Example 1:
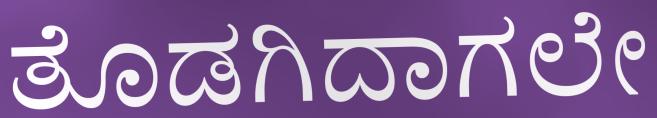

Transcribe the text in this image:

ತೊಡಗಿದಾಗಲೇ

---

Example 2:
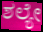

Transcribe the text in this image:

ಶಲ್ಯೇ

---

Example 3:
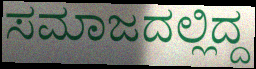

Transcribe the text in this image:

ಸಮಾಜದಲ್ಲಿದ್ದ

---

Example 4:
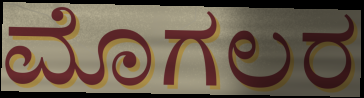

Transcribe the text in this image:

ಮೊಗಲರ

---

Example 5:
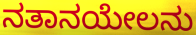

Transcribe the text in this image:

ನತಾನಯೇಲನು